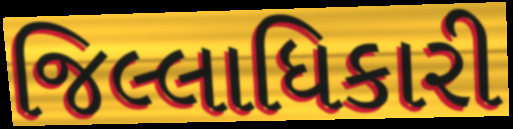
જિલ્લાધિકારી